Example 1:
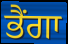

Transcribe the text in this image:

ਭੈਂਗਾ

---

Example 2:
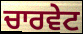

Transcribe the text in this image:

ਚਾਰਵੇਟ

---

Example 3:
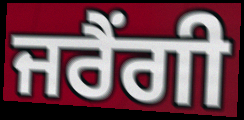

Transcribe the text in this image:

ਜਰੈਂਗੀ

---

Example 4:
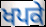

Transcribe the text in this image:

ਖਪਕੇ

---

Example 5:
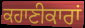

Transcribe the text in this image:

ਕਹਾਣੀਕਾਰਾਂ